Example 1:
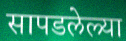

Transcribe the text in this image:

सापडलेल्या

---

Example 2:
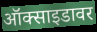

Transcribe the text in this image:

ऑक्साइडावर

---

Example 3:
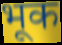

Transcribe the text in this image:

भूक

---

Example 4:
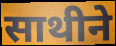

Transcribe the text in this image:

साथीने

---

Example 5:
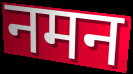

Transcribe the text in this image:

नमन